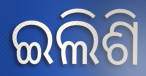
ଇଲିଶି